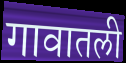
गावातली